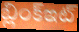
బ్లింక్ఇట్